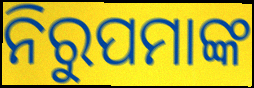
ନିରୁପମାଙ୍କ